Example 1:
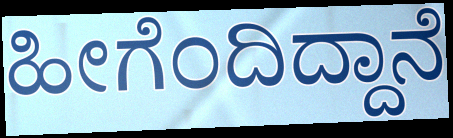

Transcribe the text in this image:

ಹೀಗೆಂದಿದ್ದಾನೆ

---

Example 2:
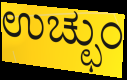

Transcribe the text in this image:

ಉಚ್ಛುಂ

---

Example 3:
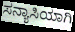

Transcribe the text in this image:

ಸನ್ಯಾಸಿಯಾಗಿ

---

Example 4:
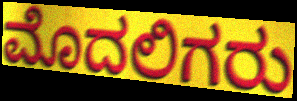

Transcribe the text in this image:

ಮೊದಲಿಗರು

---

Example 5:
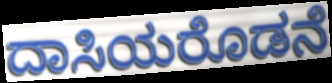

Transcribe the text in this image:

ದಾಸಿಯರೊಡನೆ